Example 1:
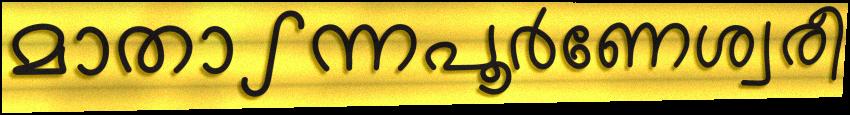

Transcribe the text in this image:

മാതാഽന്നപൂർണേശ്വരീ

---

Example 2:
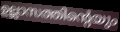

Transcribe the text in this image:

ഉല്ലാസത്തിന്റെയും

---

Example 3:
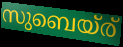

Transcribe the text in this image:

സുബെയ്ര്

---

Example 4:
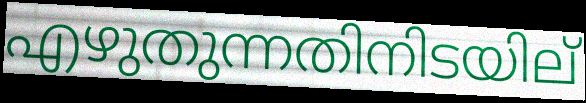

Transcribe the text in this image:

എഴുതുന്നതിനിടയില്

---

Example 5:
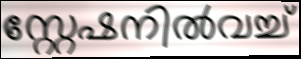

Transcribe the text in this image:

സ്റ്റേഷനിൽവച്ച്